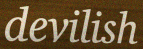
devilish